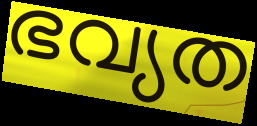
ഭവ്യത